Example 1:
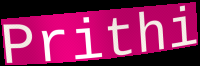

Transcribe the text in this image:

Prithi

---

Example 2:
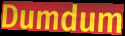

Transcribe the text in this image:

Dumdum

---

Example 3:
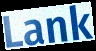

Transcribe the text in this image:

Lank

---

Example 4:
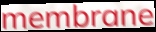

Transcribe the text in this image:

membrane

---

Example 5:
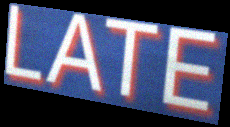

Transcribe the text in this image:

LATE